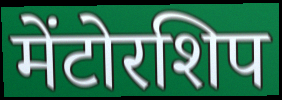
मेंटोरशिप